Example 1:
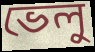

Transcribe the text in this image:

ভেলু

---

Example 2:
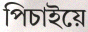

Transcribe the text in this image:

পিচাইয়ে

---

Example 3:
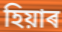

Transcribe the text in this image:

হিয়াৰ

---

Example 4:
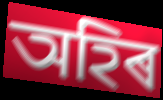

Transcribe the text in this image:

অহিৰ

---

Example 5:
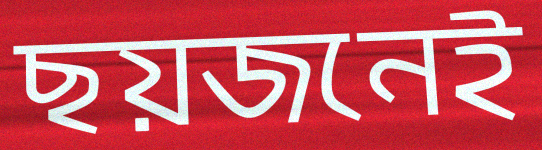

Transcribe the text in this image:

ছয়জনেই